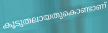
കൂടുതലായതുകൊണ്ടാണ്